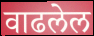
वाढलेल